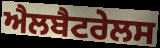
ਐਲਬੈਟਰੇਲਸ